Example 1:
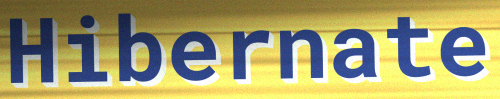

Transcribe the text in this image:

Hibernate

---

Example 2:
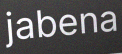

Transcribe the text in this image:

jabena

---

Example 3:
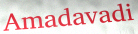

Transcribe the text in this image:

Amadavadi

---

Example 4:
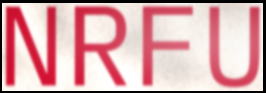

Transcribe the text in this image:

NRFU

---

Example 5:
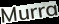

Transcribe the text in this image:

Murra